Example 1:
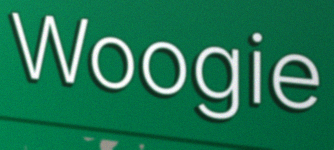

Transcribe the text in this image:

Woogie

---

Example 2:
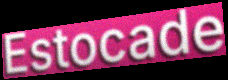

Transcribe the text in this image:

Estocade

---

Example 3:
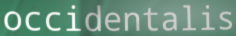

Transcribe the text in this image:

occidentalis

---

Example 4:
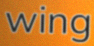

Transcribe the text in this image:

wing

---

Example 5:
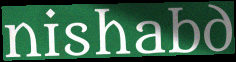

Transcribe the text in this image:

nishabd